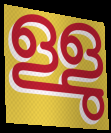
ള്ളു